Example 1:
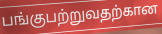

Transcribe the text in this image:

பங்குபற்றுவதற்கான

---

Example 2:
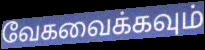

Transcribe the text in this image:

வேகவைக்கவும்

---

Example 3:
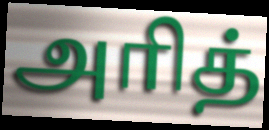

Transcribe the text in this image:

அரித்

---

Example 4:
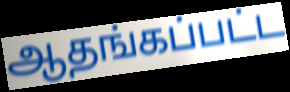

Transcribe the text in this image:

ஆதங்கப்பட்ட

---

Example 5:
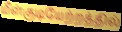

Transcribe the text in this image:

மீள்குடியேற்றத்தில்